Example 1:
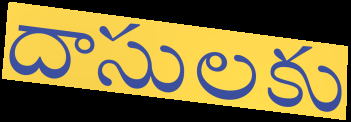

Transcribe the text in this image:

దాసులకు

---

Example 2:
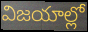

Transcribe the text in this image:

విజయాల్లో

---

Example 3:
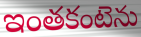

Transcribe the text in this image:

ఇంతకంటెను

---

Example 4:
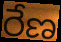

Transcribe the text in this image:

రేణ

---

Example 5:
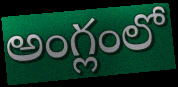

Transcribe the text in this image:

అంగ్లంలో